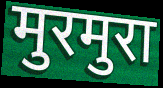
मुरमुरा